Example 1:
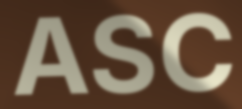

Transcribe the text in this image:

ASC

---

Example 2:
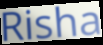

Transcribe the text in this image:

Risha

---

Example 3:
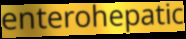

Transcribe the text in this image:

enterohepatic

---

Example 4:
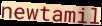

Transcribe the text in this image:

newtamil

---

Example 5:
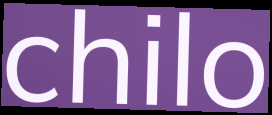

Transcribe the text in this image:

chilo